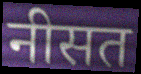
नीसत